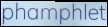
phamphlet